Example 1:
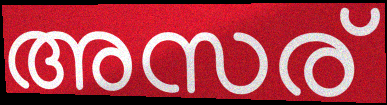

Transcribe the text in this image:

അസര്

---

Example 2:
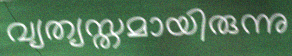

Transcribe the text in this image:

വ്യത്യസ്തമായിരുന്നു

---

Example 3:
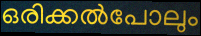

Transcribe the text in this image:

ഒരിക്കൽപോലും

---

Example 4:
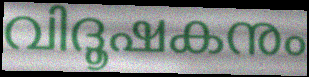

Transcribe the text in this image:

വിദൂഷകനും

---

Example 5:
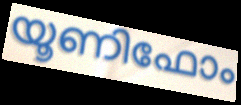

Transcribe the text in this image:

യൂണിഫോം